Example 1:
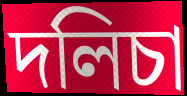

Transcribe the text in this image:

দলিচা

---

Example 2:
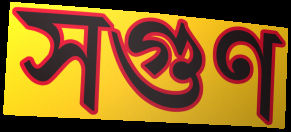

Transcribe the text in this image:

সগুণ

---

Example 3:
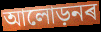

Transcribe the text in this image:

আলোড়নৰ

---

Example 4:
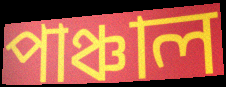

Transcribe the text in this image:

পাঞ্চাল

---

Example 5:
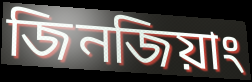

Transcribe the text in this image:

জিনজিয়াং